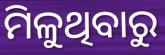
ମିଳୁଥିବାରୁ